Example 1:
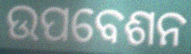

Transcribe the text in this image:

ଉପବେଶନ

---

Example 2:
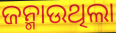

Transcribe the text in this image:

ଜନ୍ମାଉଥିଲା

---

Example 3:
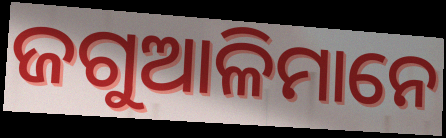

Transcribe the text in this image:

ଜଗୁଆଳିମାନେ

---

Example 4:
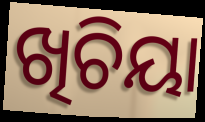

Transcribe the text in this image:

ଖିଚିୟା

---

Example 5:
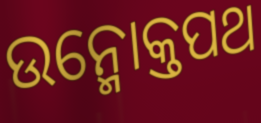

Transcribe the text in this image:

ଉନ୍ମୋକ୍ତପଥ